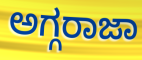
ಅಗ್ಗರಾಜಾ